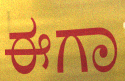
ಈಗಾ